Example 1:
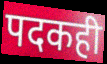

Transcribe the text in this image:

पदकही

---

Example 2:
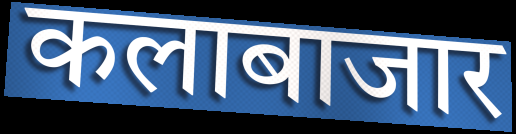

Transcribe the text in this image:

कलाबाजार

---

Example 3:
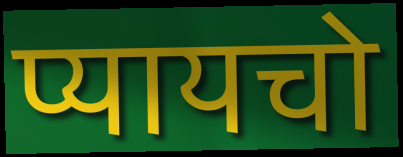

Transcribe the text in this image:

प्यायचो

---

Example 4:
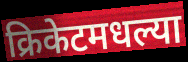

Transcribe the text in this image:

क्रिकेटमधल्या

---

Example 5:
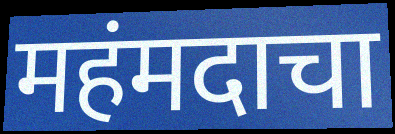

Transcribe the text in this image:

महंमदाचा